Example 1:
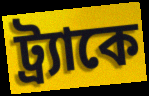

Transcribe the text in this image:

ট্র্যাকে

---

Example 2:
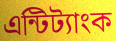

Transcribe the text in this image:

এন্টিট্যাংক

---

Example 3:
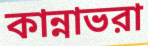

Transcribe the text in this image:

কান্নাভরা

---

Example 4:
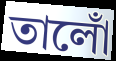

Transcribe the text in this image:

তালোঁ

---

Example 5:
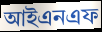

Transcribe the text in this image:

আইএনএফ